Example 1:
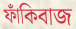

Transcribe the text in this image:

ফাঁকিবাজ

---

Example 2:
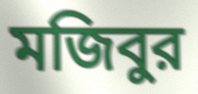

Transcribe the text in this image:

মজিবুর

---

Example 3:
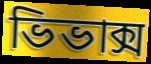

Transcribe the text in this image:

ভিভাক্স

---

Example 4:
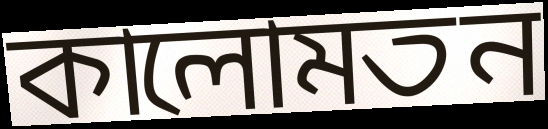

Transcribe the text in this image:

কালোমতন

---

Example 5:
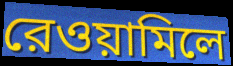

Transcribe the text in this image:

রেওয়ামিলে